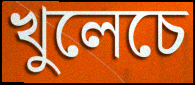
খুলেচে